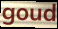
goud